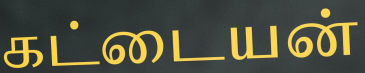
கட்டையன்